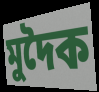
মুদৈক